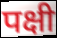
पक्षी